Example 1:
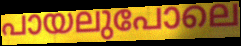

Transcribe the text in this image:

പായലുപോലെ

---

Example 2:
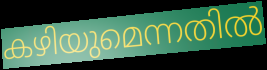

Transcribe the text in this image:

കഴിയുമെന്നതിൽ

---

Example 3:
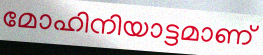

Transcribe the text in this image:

മോഹിനിയാട്ടമാണ്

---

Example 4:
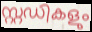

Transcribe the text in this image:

സ്റ്റഡികളും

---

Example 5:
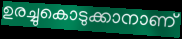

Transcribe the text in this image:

ഉരച്ചുകൊടുക്കാനാണ്